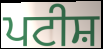
ਪਟੀਸ਼